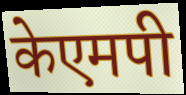
केएमपी